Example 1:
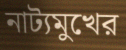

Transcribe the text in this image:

নাট্যমুখের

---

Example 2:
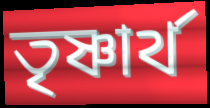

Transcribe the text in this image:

তৃষ্ণার্থ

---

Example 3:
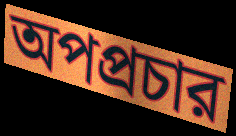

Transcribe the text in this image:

অপপ্রচার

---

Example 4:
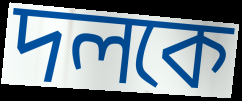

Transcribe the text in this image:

দলকে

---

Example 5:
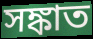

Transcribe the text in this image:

সঙ্কাত